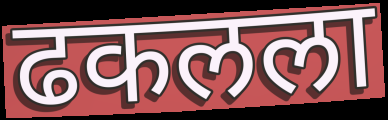
ढकलला